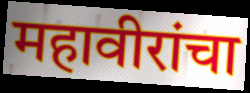
महावीरांचा